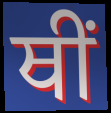
ਥੀਂ